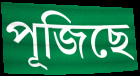
পূজিছে